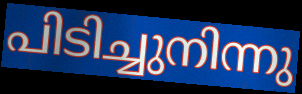
പിടിച്ചുനിന്നു